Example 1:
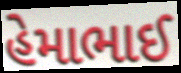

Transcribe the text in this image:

હેમાભાઈ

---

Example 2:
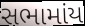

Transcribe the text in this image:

સભામાંય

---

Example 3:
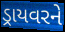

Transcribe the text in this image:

ડ્રાયવરને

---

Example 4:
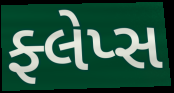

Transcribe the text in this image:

ફ્લેપ્સ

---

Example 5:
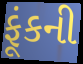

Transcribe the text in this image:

ફૂંકની